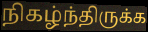
நிகழ்ந்திருக்க